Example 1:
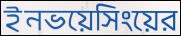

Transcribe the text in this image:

ইনভয়েসিংয়ের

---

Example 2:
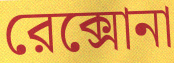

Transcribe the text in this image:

রেক্সোনা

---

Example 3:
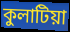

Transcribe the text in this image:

কুলাটিয়া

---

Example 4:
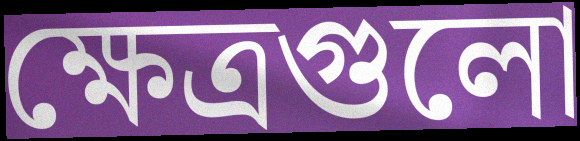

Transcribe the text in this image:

ক্ষেত্রগুলো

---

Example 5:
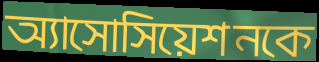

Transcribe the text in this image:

অ্যাসোসিয়েশনকে